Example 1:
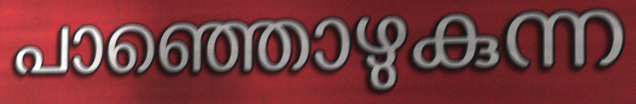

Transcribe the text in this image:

പാഞ്ഞൊഴുകുന്ന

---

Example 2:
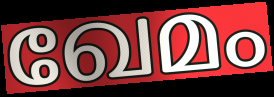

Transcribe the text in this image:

ഖേമം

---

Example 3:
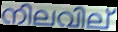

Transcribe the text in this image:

നിലവില്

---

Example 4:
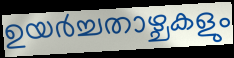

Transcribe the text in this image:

ഉയർച്ചതാഴ്ചകളും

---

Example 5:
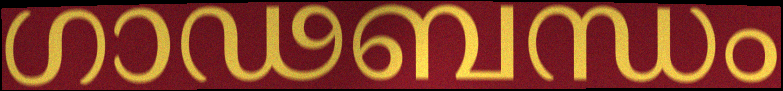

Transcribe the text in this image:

ഗാഢബന്ധം